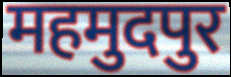
महमुदपुर